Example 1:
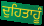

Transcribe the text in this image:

ਦੁਹਿਤਾਹੂੰ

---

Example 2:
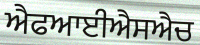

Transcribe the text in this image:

ਐਫਆਈਐਸਐਚ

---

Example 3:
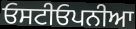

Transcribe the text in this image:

ਓਸਟੀਓਪਨੀਆ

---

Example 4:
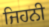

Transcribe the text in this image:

ਜਿਹਨੀ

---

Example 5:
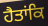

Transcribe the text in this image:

ਹੈਤਾਂਕਿ